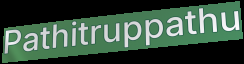
Pathitruppathu